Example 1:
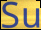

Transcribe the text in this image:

Su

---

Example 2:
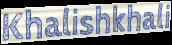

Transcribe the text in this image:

Khalishkhali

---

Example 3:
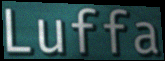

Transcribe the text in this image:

Luffa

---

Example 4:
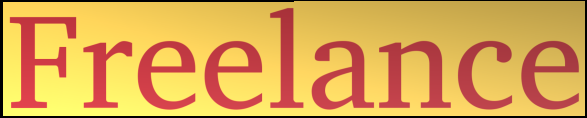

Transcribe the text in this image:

Freelance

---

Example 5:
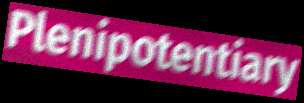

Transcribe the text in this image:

Plenipotentiary